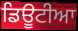
ਡਿਊਟੀਆ